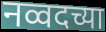
नव्वदच्या